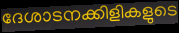
ദേശാടനക്കിളികളുടെ